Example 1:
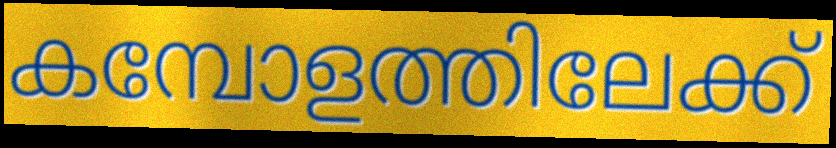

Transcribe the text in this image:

കമ്പോളത്തിലേക്ക്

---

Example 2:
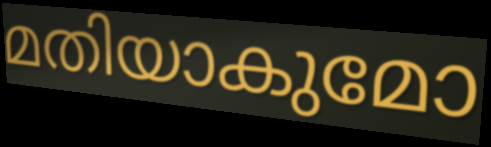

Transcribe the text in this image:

മതിയാകുമോ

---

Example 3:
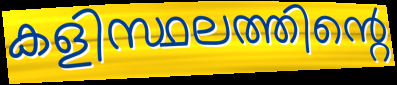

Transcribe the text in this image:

കളിസ്ഥലത്തിന്റെ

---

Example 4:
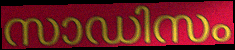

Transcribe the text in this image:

സാഡിസം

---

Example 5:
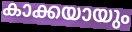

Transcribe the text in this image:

കാക്കയായും